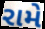
રામે